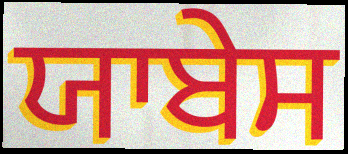
ਯਾਬੇਸ